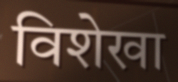
विशेखा